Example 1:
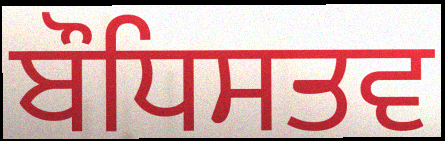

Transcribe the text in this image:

ਬੌਧਿਸਤਵ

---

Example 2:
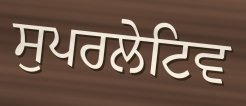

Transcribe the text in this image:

ਸੁਪਰਲੇਟਿਵ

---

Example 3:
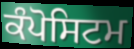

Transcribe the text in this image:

ਕੰਪੋਸਿਟਮ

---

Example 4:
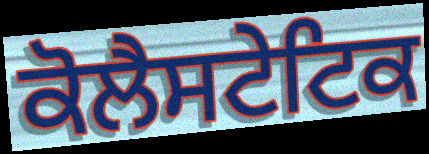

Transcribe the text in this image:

ਕੋਲੈਸਟੇਟਿਕ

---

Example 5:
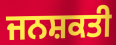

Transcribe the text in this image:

ਜਨਸ਼ਕਤੀ